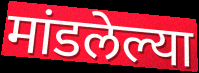
मांडलेल्या